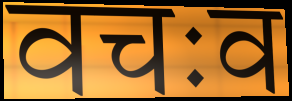
वचःव